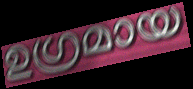
ഉഗ്രമായ